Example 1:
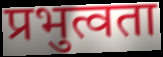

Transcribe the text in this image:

प्रभुत्वता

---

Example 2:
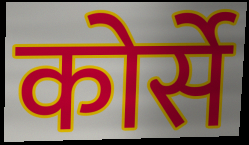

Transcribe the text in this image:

कोर्से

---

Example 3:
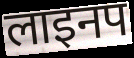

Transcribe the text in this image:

लाइनप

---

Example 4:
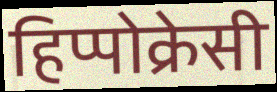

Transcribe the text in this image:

हिप्पोक्रेसी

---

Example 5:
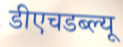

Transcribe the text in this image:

डीएचडब्ल्यू